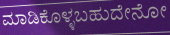
ಮಾಡಿಕೊಳ್ಳಬಹುದೇನೋ